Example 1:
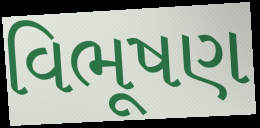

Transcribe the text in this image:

વિભૂષણ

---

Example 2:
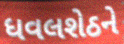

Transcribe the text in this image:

ધવલશેઠને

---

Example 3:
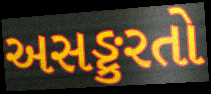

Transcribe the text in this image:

અસઙ્કરતો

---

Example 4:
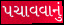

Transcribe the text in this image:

પચાવવાનું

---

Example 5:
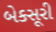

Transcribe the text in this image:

બેકસૂરી